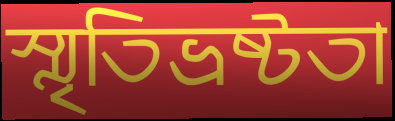
স্মৃতিভ্রষ্টতা